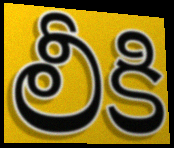
లీకి